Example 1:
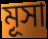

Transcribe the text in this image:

মূসা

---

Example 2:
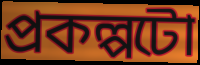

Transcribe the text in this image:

প্ৰকল্পটো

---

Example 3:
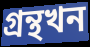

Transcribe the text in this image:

গ্ৰন্থখন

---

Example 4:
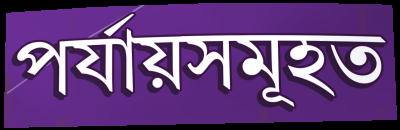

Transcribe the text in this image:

পৰ্যায়সমূহত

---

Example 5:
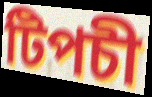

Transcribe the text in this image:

টিপচী